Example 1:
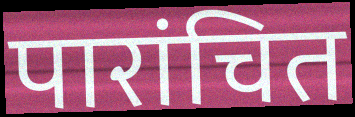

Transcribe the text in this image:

पारांचित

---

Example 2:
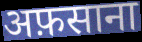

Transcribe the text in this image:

अफ़साना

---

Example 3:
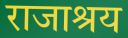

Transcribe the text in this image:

राजाश्रय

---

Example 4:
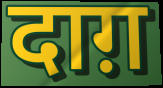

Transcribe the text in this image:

दाग़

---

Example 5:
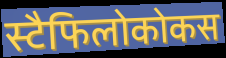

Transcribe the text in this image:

स्टैफिलोकोकस